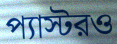
প্যাস্টরও